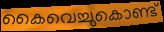
കൈവെച്ചുകൊണ്ട്